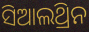
ସିଆଲଥ୍ରିନ